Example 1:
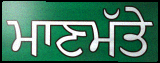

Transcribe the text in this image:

ਮਾਣਮੱਤੇ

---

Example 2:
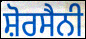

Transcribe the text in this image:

ਸ਼ੋਰਸੈਨੀ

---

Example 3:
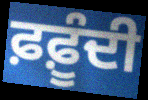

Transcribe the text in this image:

ਫ਼ਫ਼ੂੰਦੀ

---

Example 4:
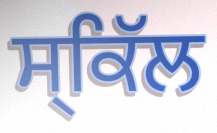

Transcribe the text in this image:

ਸ੍ਕਿੱਲ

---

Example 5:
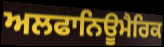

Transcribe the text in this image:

ਅਲਫਾਨਿਊਮੈਰਿਕ